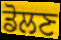
ਡੋਲਣ